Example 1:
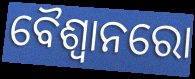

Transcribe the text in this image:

ବୈଶ୍ୱାନରୋ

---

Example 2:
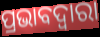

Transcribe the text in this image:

ପ୍ରଭାବଦ୍ୱାରା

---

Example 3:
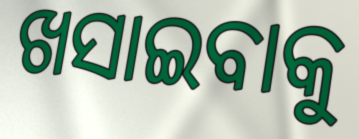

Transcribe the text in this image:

ଖସାଇବାକୁ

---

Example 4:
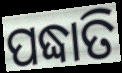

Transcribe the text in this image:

ପଦ୍ଧାତି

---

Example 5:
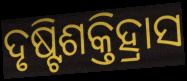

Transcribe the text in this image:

ଦୃଷ୍ଟିଶକ୍ତିହ୍ରାସ